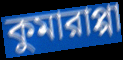
কুমারাপ্পা